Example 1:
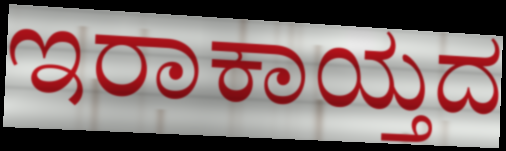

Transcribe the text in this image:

ಇರಾಕಾಯ್ತದ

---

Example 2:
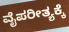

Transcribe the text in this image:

ವೈಪರೀತ್ಯಕ್ಕೆ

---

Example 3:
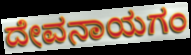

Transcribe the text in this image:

ದೇವನಾಯಗಂ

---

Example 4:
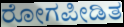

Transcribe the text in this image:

ರೋಗಪೀಡಿತ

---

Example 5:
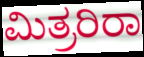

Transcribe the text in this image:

ಮಿತ್ರರಿರಾ